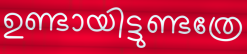
ഉണ്ടായിട്ടുണ്ടത്രേ